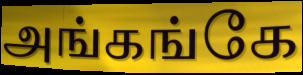
அங்கங்கே